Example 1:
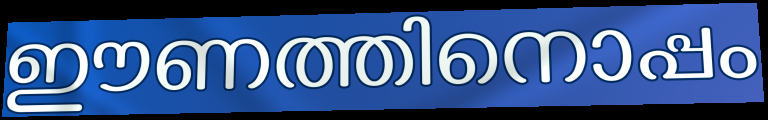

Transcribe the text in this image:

ഈണത്തിനൊപ്പം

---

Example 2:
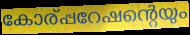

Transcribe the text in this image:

കോര്പ്പറേഷന്റെയും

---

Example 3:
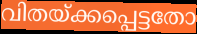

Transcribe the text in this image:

വിതയ്ക്കപ്പെട്ടതോ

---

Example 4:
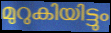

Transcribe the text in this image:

മുറുകിയിട്ടും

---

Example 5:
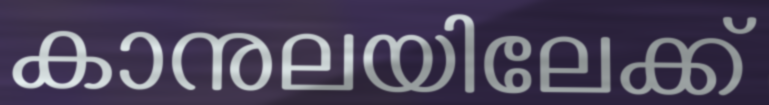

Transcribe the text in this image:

കാനുലയിലേക്ക്